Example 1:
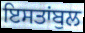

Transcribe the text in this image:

ਇਸਤਾਂਬੁਲ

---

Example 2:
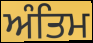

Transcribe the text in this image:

ਅੰਤਿਮ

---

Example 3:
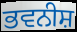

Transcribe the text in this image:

ਭਵਨੀਸ਼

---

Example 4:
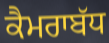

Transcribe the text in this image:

ਕੈਮਰਾਬੱਧ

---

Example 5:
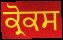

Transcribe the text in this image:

ਕ੍ਰੋਕਸ